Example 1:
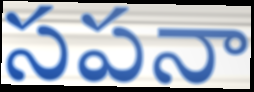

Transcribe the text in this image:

సపనా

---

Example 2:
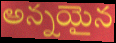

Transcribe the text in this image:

అన్నయైన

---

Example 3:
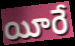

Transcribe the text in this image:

యీరే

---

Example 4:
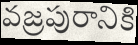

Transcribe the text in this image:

వజ్రపురానికి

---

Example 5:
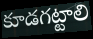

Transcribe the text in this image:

కూడగట్టాలి